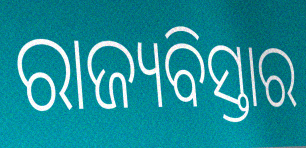
ରାଜ୍ୟବିସ୍ତାର